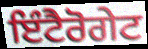
ਇੰਟੈਰੋਗੇਟ